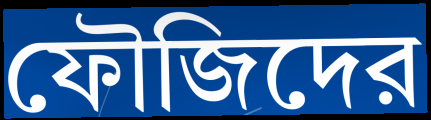
ফৌজিদের